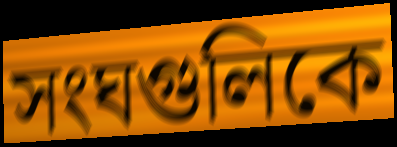
সংঘগুলিকে